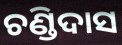
ଚଣ୍ଡିଦାସ